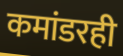
कमांडरही